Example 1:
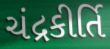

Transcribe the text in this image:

ચંદ્રકીર્તિ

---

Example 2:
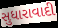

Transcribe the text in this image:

સુધારાવાદી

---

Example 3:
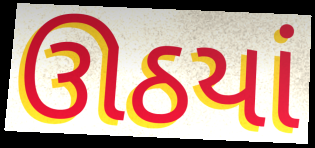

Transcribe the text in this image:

ઊઠયાં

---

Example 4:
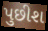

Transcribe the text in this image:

પુછીશ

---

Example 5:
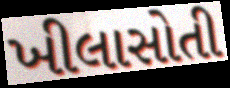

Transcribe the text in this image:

ખીલાસોતી